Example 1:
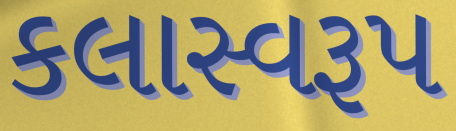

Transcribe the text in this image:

કલાસ્વરૂપ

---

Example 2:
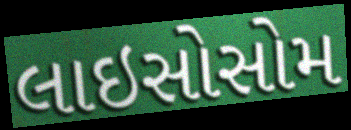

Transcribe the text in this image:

લાઇસોસોમ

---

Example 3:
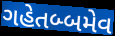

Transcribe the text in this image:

ગહેતબ્બમેવ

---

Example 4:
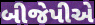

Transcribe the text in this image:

બીજેપીએ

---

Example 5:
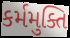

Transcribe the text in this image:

કર્મમુક્તિ